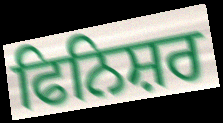
ਫਿਨਿਸ਼ਰ